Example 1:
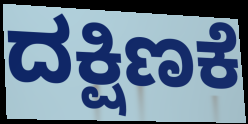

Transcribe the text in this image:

ದಕ್ಷಿಣಕೆ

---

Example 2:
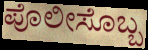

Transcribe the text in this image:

ಪೊಲೀಸೊಬ್ಬ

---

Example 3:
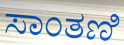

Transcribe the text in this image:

ಸಾಂತಣಿ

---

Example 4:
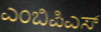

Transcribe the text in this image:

ಎಂಬಿಪಿಎಸ್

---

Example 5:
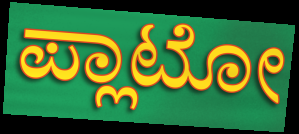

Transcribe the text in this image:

ಪ್ಲಾಟೋ